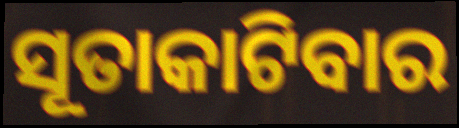
ସୂତାକାଟିବାର